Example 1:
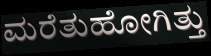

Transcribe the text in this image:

ಮರೆತುಹೋಗಿತ್ತು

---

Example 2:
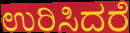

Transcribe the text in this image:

ಉರಿಸಿದರೆ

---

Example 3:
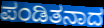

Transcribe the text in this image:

ಪಂಡಿತನಾದ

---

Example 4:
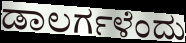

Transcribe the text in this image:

ಡಾಲರ್ಗಳೆಂದು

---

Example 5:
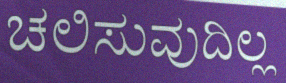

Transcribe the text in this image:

ಚಲಿಸುವುದಿಲ್ಲ